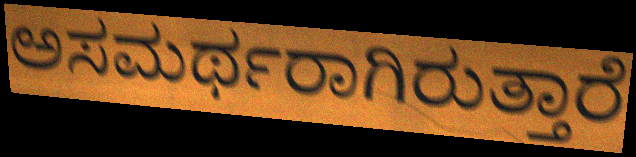
ಅಸಮರ್ಥರಾಗಿರುತ್ತಾರೆ